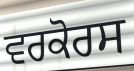
ਵਰਕੋਰਸ